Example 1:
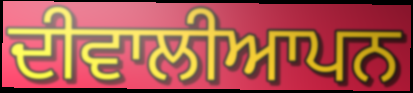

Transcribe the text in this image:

ਦੀਵਾਲੀਆਪਨ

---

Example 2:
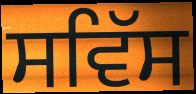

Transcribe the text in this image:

ਸਵਿੱਸ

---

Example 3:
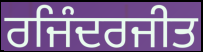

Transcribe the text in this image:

ਰਜਿੰਦਰਜੀਤ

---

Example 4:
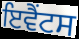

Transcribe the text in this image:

ਇਵੈਂਟਸ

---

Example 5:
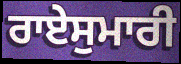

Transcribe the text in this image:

ਰਾਏਸੁਮਾਰੀ